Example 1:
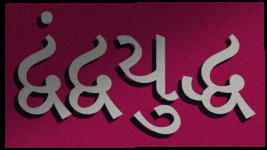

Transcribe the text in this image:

દ્વંદ્વયુદ્ધ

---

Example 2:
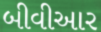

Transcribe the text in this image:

બીવીઆર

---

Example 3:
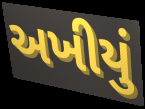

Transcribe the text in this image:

અખીયું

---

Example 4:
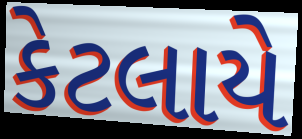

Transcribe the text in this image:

કેટલાયે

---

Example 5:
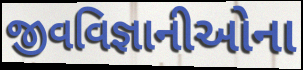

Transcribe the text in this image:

જીવવિજ્ઞાનીઓના